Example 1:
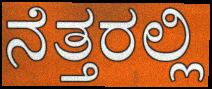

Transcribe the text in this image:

ನೆತ್ತರಲ್ಲಿ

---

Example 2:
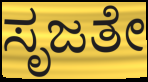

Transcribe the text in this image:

ಸೃಜತೇ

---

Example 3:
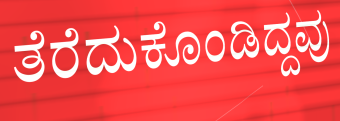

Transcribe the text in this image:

ತೆರೆದುಕೊಂಡಿದ್ದವು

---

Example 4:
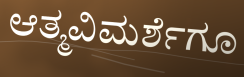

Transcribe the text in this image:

ಆತ್ಮವಿಮರ್ಶೆಗೂ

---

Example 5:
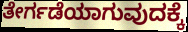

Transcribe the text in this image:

ತೇರ್ಗಡೆಯಾಗುವುದಕ್ಕೆ